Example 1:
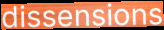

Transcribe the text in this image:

dissensions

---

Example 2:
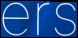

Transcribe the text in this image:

ers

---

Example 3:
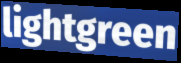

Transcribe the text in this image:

lightgreen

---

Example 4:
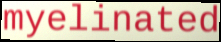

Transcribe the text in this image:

myelinated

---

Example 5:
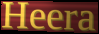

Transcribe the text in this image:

Heera